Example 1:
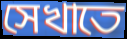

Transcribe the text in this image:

সেখাতে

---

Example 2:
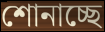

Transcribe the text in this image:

শোনাচ্ছে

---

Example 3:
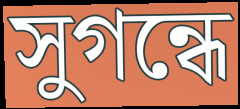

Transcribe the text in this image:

সুগন্ধে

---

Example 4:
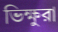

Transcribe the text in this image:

ভিক্ষুরা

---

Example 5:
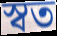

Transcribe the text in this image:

স্বত